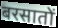
बरसातों